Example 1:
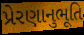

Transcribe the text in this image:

પ્રેરણાનુભૂતિ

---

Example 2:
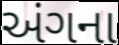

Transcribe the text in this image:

અંગના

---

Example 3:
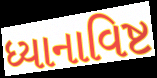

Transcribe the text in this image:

ધ્યાનાવિષ્ટ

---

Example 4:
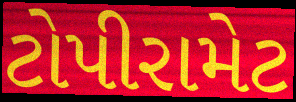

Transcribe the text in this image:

ટોપીરામેટ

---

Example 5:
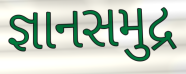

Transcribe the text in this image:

જ્ઞાનસમુદ્ર